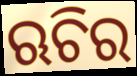
ଋଚିର